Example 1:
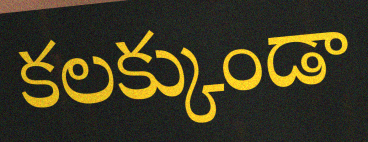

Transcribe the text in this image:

కలక్కుండా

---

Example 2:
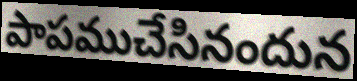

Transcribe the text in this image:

పాపముచేసినందున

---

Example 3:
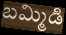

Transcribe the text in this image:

బమ్మిడి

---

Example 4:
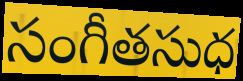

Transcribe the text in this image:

సంగీతసుధ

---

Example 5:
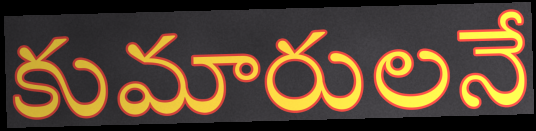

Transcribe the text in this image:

కుమారులనే